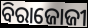
ବିରାଜୋଜୀ